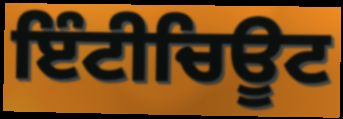
ਇੰਟੀਚਿਊਟ